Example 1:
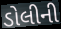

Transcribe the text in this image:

ડોલીની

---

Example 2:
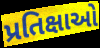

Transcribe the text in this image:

પ્રતિક્ષાઓ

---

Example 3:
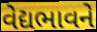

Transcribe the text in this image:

વેદ્યભાવને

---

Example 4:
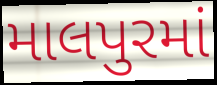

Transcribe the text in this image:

માલપુરમાં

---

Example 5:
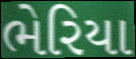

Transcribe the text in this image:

ભેરિયા